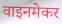
वाइनमेकर